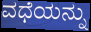
ವಧೆಯನ್ನು